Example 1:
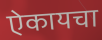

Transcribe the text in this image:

ऐकायचा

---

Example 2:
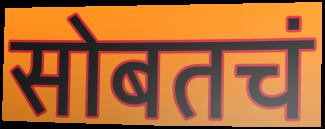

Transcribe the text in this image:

सोबतचं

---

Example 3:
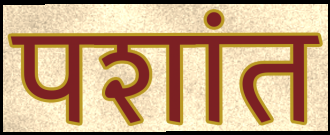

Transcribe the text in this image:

पशांत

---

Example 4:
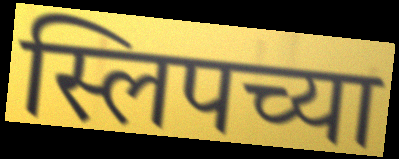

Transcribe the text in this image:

स्लिपच्या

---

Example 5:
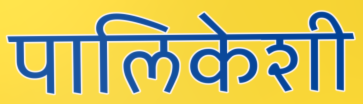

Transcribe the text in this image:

पालिकेशी